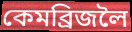
কেমব্ৰিজলৈ